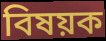
বিষয়ক